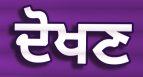
ਦੋਖਣ